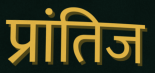
प्रांतिज